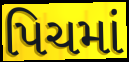
પિચમાં